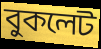
বুকলেট